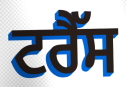
ਟਰੈੱਸ